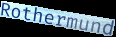
Rothermund